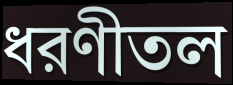
ধরণীতল